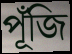
পূঁজি